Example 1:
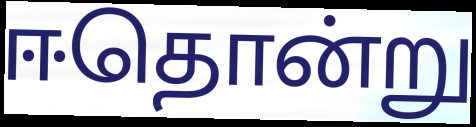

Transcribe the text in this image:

ஈதொன்று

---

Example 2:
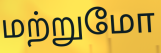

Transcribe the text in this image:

மற்றுமோ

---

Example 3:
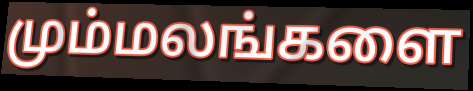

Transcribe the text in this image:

மும்மலங்களை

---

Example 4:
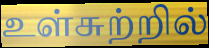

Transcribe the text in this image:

உள்சுற்றில்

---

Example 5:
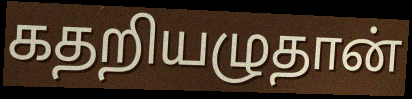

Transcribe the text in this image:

கதறியழுதான்